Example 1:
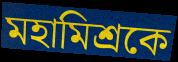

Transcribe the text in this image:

মহামিশ্রকে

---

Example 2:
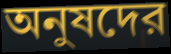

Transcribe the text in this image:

অনুষদের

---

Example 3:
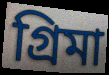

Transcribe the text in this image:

গ্রিমা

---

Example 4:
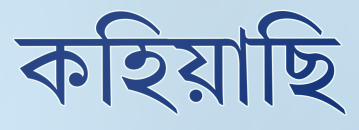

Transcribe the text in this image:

কহিয়াছি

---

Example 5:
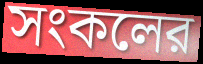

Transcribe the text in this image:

সংকলের